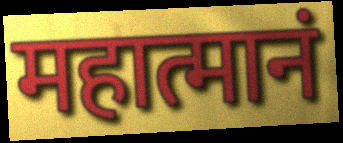
महात्मानं